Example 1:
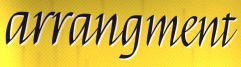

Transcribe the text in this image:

arrangment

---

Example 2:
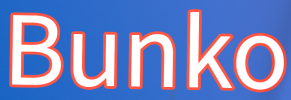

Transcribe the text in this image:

Bunko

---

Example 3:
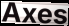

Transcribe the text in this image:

Axes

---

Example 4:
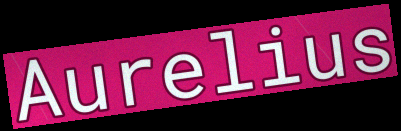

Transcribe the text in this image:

Aurelius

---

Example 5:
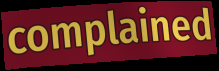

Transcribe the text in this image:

complained